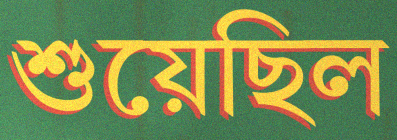
শুয়েছিল